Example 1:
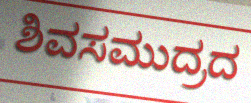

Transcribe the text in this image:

ಶಿವಸಮುದ್ರದ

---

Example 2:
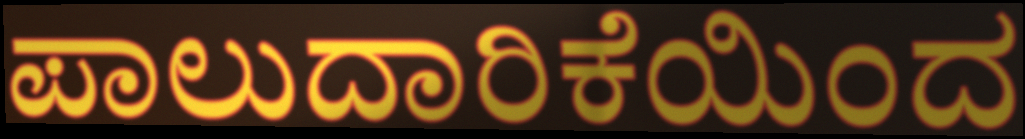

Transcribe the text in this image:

ಪಾಲುದಾರಿಕೆಯಿಂದ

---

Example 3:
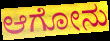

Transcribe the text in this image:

ಆಗೋನು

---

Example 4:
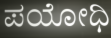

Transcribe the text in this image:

ಪಯೋಧಿ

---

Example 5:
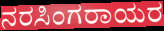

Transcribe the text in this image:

ನರಸಿಂಗರಾಯರ